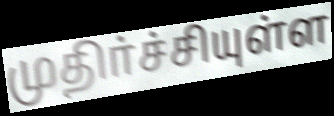
முதிர்ச்சியுள்ள